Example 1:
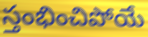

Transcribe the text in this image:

స్తంభించిపోయే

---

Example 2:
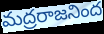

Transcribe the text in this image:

మద్రరాజనింద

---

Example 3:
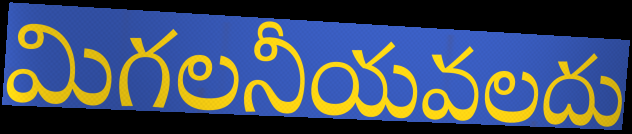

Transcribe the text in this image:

మిగలనీయవలదు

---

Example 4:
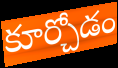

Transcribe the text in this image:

కూర్చోడం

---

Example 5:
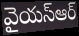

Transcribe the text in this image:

వైయస్ఆర్